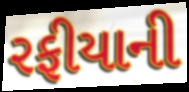
રફીયાની